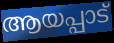
ആയപ്പാട്